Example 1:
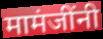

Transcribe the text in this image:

मामंजींनी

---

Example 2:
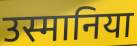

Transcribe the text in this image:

उस्मानिया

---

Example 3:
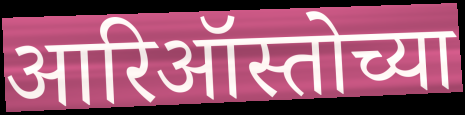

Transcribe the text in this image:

आरिऑस्तोच्या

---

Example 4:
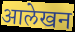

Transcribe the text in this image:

आलेखन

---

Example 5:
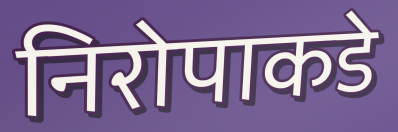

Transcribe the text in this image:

निरोपाकडे